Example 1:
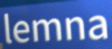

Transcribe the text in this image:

lemna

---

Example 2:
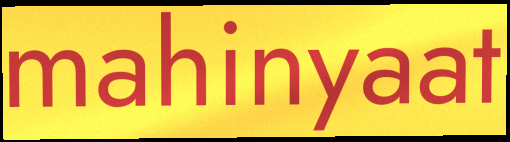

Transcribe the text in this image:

mahinyaat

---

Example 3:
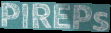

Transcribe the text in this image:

PIREPs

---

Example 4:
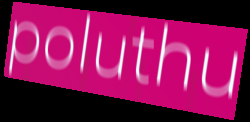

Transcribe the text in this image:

poluthu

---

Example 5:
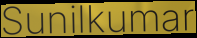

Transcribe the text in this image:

Sunilkumar